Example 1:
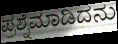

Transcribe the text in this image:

ಪ್ರಶ್ನೆಮಾಡಿದನು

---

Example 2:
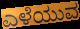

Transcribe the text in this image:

ಎಳೆಯುವ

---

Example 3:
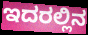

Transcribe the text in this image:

ಇದರಲ್ಲಿನ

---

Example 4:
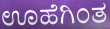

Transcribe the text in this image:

ಊಹೆಗಿಂತ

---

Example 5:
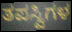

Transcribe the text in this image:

ತಪಸ್ವಿಗಳ